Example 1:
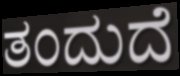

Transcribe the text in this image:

ತಂದುದೆ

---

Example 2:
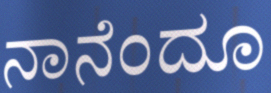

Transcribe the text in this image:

ನಾನೆಂದೂ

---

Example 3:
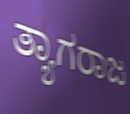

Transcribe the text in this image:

ತ್ಯಾಗರಾಜ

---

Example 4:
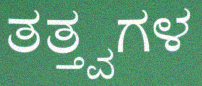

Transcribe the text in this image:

ತತ್ತ್ವಗಳ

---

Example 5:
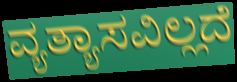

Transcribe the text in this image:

ವ್ಯತ್ಯಾಸವಿಲ್ಲದೆ